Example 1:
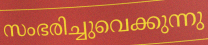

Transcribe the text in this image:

സംഭരിച്ചുവെക്കുന്നു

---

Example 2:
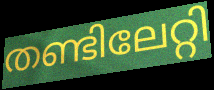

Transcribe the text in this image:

തണ്ടിലേറ്റി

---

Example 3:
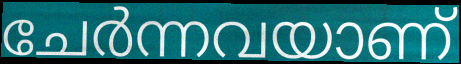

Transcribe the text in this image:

ചേർന്നവയാണ്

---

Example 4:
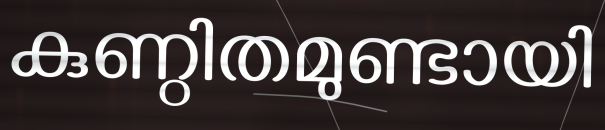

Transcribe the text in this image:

കുണ്ഠിതമുണ്ടായി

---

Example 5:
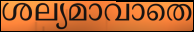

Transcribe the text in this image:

ശല്യമാവാതെ